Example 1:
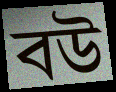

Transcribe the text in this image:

বউ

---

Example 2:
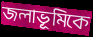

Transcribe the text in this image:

জলাভূমিকে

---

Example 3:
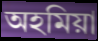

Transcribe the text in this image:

অহমিয়া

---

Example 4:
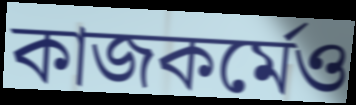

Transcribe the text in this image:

কাজকর্মেও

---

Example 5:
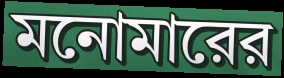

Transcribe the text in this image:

মনোমারের